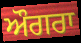
ਔਗਰਾ